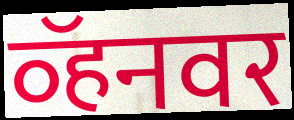
व्हॅनवर